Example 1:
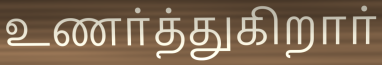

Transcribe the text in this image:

உணர்த்துகிறார்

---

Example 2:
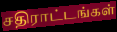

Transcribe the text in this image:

சதிராட்டங்கள்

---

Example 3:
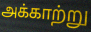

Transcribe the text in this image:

அக்காற்று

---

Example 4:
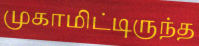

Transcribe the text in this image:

முகாமிட்டிருந்த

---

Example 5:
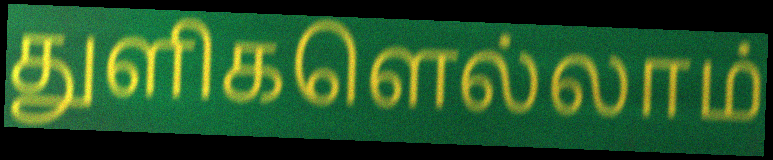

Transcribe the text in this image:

துளிகளெல்லாம்